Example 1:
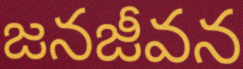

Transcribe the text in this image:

జనజీవన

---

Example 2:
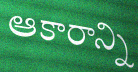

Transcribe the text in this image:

ఆకారాన్ని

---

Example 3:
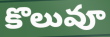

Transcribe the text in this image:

కొలువూ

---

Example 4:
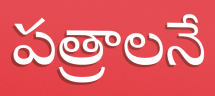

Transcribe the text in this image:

పత్రాలనే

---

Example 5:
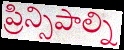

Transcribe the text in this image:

ప్రిన్సిపాల్ని